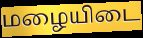
மழையிடை